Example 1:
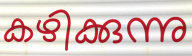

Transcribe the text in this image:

കഴിക്കുന്നു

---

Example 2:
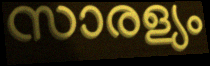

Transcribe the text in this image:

സാരള്യം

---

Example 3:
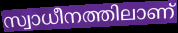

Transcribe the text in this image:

സ്വാധീനത്തിലാണ്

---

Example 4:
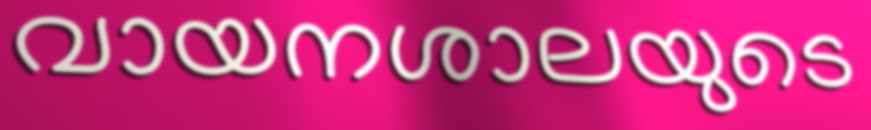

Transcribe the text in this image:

വായനശാലയുടെ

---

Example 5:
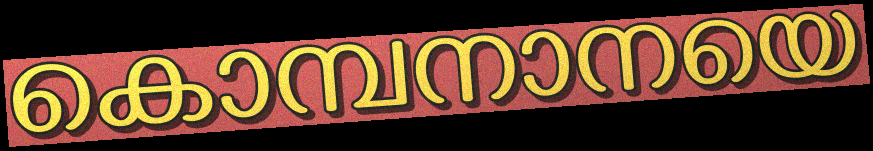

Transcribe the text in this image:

കൊമ്പനാനയെ